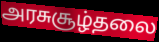
அரசுசூழ்தலை